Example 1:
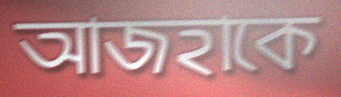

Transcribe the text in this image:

আজহাকে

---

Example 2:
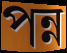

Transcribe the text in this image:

পন্ন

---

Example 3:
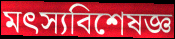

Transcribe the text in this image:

মৎস্যবিশেষজ্ঞ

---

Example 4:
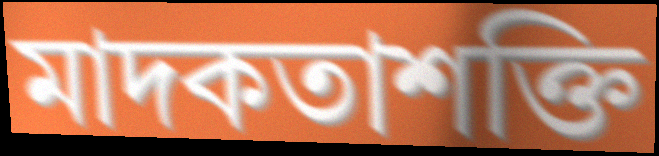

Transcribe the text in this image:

মাদকতাশক্তি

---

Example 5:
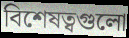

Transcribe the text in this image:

বিশেষত্বগুলো